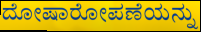
ದೋಷಾರೋಪಣೆಯನ್ನು